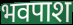
भवपाश